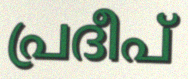
പ്രദീപ്